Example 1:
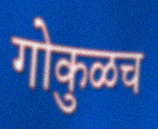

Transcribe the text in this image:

गोकुळच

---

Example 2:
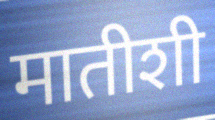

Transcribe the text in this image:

मातीशी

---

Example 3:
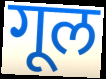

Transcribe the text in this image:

गूल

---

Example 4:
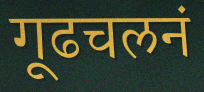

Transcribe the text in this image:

गूढचलनं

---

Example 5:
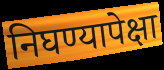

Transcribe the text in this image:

निघण्यापेक्षा